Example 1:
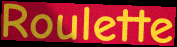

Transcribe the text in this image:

Roulette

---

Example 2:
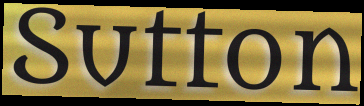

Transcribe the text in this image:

Sutton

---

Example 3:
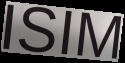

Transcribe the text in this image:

ISIM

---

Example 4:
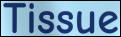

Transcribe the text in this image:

Tissue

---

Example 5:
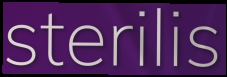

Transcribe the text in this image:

sterilis